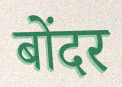
बोंदर